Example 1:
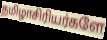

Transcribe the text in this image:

தமிழாசிரியர்களே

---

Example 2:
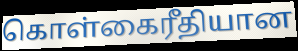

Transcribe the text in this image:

கொள்கைரீதியான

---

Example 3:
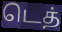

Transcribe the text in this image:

டெத்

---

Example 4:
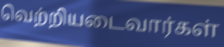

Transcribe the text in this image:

வெற்றியடைவார்கள்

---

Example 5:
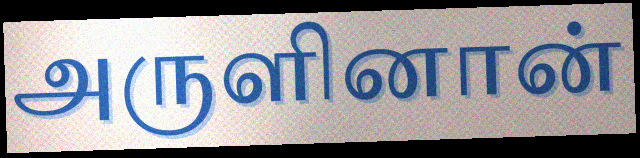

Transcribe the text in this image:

அருளினான்